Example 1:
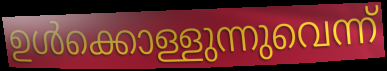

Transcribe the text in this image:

ഉൾക്കൊള്ളുന്നുവെന്ന്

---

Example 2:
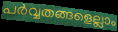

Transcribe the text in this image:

പർവ്വതങ്ങളെല്ലാം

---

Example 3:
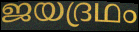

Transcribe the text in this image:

ജയദ്രഥം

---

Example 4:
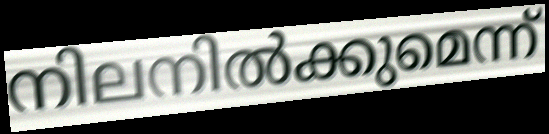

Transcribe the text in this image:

നിലനിൽക്കുമെന്ന്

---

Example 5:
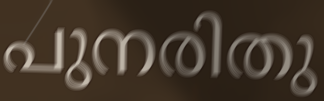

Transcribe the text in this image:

പുനരിതു